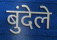
बुंदेले